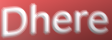
Dhere